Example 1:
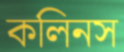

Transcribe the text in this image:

কলিনস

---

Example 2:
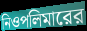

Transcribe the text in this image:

নিওপলিমারের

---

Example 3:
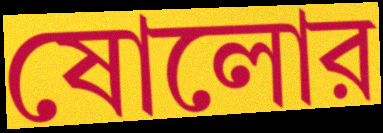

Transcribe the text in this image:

ষোলোর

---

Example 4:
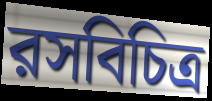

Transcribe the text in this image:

রসবিচিত্র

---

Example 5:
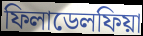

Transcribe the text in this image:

ফিলাডেলফিয়া